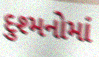
દુશ્મનોમાં